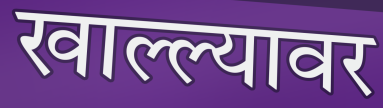
खाल्ल्यावर